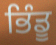
ਭਿੰਡੂ